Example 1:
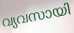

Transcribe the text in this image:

വ്യവസായി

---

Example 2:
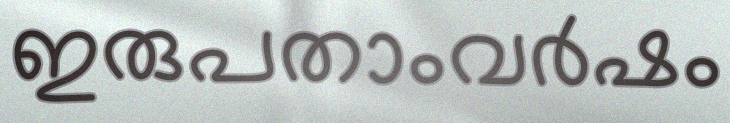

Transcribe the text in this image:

ഇരുപതാംവർഷം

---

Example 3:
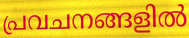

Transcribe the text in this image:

പ്രവചനങ്ങളിൽ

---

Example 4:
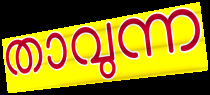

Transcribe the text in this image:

താവുന്ന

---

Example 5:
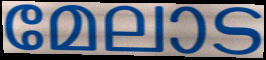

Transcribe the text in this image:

മേലാട